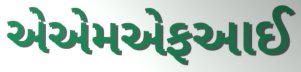
એએમએફઆઈ